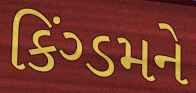
કિંગ્ડમને